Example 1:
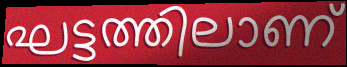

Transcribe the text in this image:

ഘട്ടത്തിലാണ്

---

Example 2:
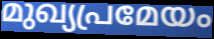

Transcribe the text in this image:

മുഖ്യപ്രമേയം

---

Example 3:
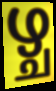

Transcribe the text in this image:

ഴ്ച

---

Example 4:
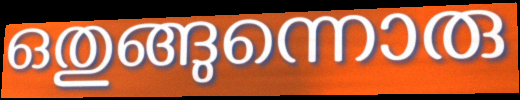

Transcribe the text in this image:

ഒതുങ്ങുന്നൊരു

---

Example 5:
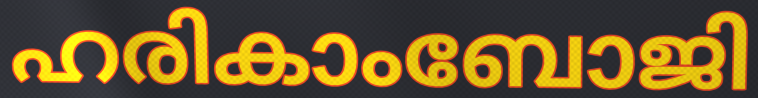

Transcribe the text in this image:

ഹരികാംബോജി